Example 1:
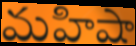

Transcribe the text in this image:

మహిషా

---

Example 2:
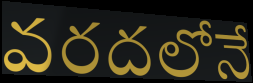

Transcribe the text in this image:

వరదలోనే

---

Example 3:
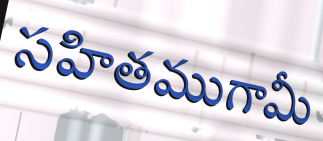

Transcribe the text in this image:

సహితముగామీ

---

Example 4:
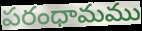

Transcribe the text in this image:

పరంధామము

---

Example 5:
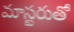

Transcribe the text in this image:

మాస్టరుతో